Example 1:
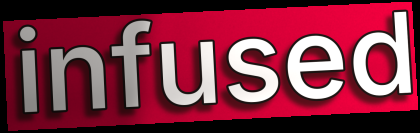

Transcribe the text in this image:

infused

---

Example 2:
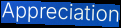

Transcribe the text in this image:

Appreciation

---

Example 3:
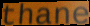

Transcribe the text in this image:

thane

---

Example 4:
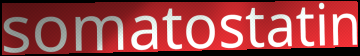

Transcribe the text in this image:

somatostatin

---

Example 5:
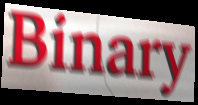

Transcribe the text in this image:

Binary